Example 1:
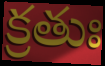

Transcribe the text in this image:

క్రతుః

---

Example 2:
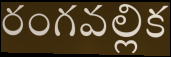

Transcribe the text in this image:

రంగవల్లిక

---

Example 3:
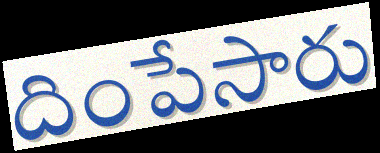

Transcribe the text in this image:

దింపేసారు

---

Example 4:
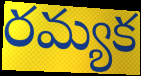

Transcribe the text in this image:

రమ్యక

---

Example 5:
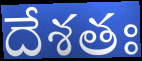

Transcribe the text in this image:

దేశతః